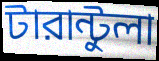
টারান্টুলা